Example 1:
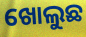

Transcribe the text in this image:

ଖୋଲୁଛ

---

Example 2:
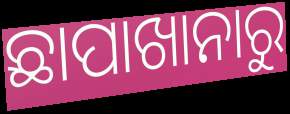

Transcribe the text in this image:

ଛାପାଖାନାରୁ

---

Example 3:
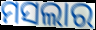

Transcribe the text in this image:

ମସଲାର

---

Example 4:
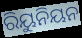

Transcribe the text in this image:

ରିୟୁନିୟନ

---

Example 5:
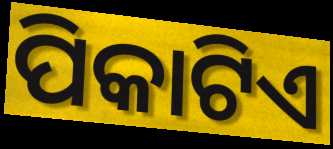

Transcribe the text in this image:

ପିକାଟିଏ